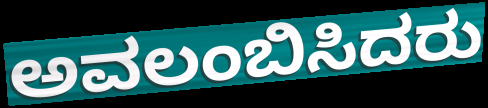
ಅವಲಂಬಿಸಿದರು